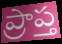
ప్రాప్త